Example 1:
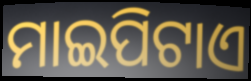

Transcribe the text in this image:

ମାଇପିଟାଏ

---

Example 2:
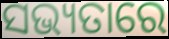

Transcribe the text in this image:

ସଭ୍ୟତାରେ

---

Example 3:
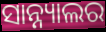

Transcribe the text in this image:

ସାନ୍ନ୍ୟାଲର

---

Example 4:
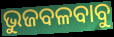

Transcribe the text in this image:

ଭୁଜବଳବାବୁ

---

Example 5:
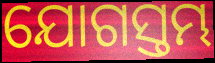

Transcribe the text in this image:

ଯୋଗସ୍ତମ୍ଭ